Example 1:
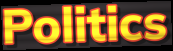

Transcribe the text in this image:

Politics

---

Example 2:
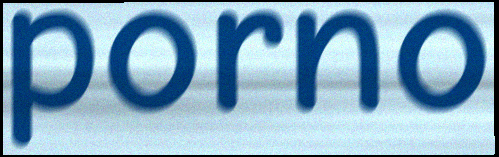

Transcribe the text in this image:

porno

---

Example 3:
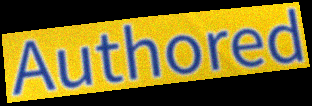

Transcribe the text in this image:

Authored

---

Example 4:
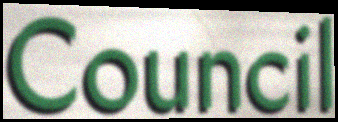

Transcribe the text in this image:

Council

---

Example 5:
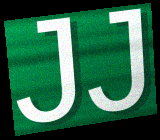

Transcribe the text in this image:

JJ